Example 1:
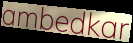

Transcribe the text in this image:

ambedkar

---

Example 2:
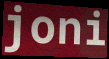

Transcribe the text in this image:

joni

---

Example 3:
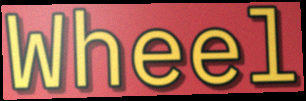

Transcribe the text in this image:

Wheel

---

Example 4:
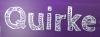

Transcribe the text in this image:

Quirke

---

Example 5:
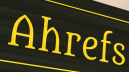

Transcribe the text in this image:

Ahrefs